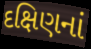
દક્ષિણનાં